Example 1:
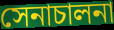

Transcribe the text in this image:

সেনাচালনা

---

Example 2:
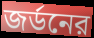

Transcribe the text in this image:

জর্ডনের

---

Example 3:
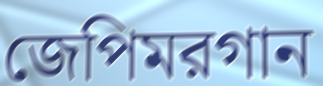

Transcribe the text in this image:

জেপিমরগান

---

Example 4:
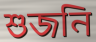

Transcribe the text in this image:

শুজনি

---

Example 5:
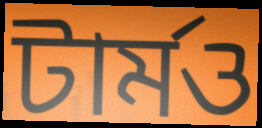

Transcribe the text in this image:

টার্মও